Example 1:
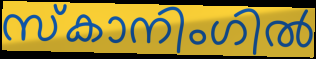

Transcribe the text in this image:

സ്കാനിംഗിൽ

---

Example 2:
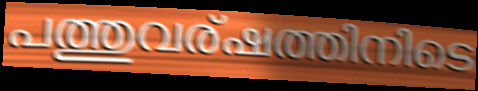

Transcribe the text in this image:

പത്തുവര്ഷത്തിനിടെ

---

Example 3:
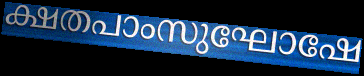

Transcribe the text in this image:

ക്ഷതപാംസുഘോഷേ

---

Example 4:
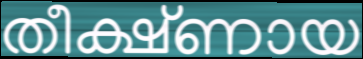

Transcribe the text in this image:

തീക്ഷ്ണായ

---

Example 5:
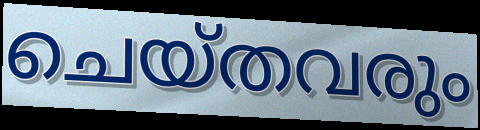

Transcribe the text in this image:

ചെയ്തവരും